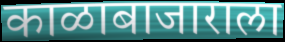
काळाबाजाराला